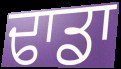
ਢਾਡਾ